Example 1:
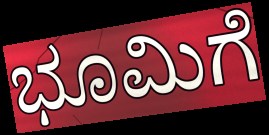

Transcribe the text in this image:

ಭೂಮಿಗೆ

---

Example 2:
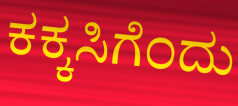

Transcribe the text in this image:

ಕಕ್ಕಸಿಗೆಂದು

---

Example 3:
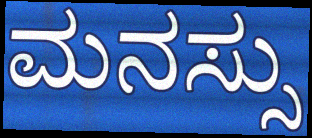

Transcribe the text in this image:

ಮನಸ್ಸು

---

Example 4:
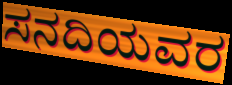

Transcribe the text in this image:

ಸನದಿಯವರ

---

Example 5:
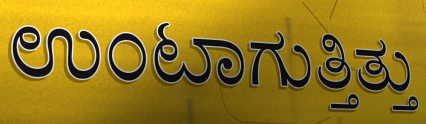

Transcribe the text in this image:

ಉಂಟಾಗುತ್ತಿತ್ತು